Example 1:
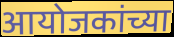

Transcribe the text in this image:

आयोजकांच्या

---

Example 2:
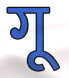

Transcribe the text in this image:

गू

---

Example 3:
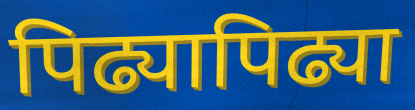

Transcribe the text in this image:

पिढ्यापिढ्या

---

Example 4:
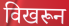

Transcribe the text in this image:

विखरून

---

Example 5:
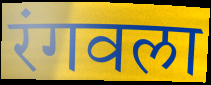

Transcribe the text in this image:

रंगवला